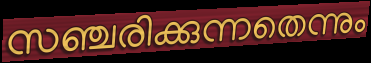
സഞ്ചരിക്കുന്നതെന്നും